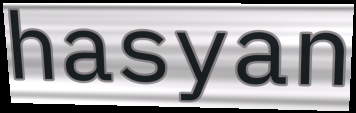
hasyan